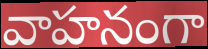
వాహనంగా